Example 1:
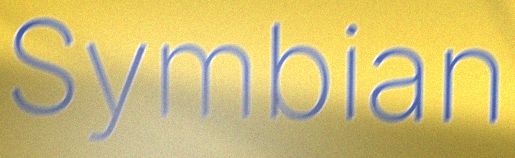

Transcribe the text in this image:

Symbian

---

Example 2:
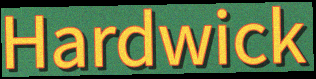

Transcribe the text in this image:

Hardwick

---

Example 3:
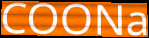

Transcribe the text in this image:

COONa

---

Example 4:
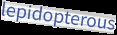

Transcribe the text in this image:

lepidopterous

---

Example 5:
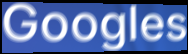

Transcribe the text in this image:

Googles